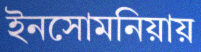
ইনসোমনিয়ায়